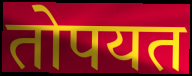
तोपयत